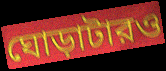
ঘোড়াটারও